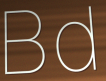
Bd